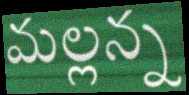
మల్లన్న